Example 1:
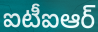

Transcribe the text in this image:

ఐటీఐఆర్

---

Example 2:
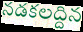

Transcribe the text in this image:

నడకలద్దిన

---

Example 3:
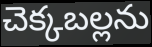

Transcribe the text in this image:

చెక్కబల్లను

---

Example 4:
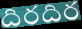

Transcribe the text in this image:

దిరదిర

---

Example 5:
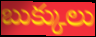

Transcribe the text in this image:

బుక్కులు